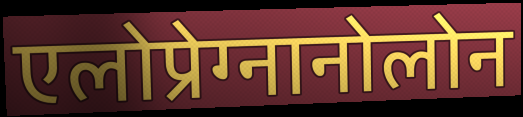
एलोप्रेग्नानोलोन